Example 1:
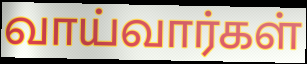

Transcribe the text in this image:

வாய்வார்கள்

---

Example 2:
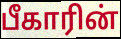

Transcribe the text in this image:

பீகாரின்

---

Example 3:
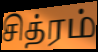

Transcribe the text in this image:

சித்ரம்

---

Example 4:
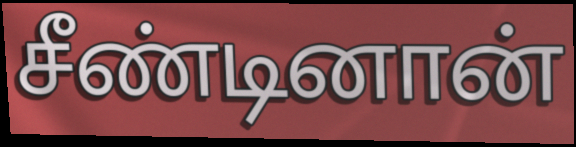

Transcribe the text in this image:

சீண்டினான்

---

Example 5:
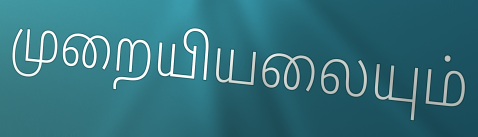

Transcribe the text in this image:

முறையியலையும்